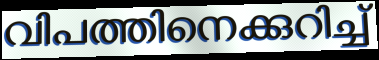
വിപത്തിനെക്കുറിച്ച്